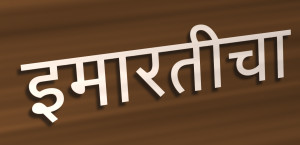
इमारतीचा